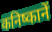
कनिष्कानें